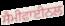
ਸੈਮੀਫਾਈਨਲ